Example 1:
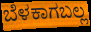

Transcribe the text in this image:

ಬೆಳಕಾಗಬಲ್ಲ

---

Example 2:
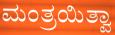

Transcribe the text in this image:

ಮಂತ್ರಯಿತ್ವಾ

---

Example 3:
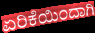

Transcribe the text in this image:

ಏರಿಕೆಯಿಂದಾಗಿ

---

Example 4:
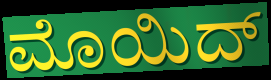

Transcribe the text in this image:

ಮೊಯಿದ್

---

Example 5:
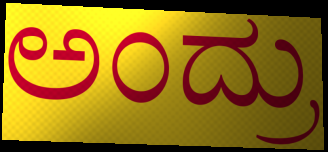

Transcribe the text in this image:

ಅಂದ್ರು